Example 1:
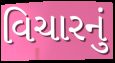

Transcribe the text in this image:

વિચારનું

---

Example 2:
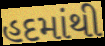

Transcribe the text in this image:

હદમાંથી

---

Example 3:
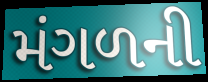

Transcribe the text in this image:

મંગળની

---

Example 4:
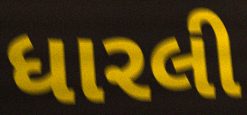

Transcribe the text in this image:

ધારલી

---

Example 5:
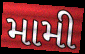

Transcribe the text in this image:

મામી